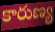
కారుణ్య